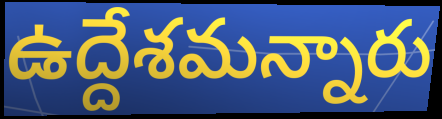
ఉద్దేశమన్నారు